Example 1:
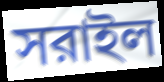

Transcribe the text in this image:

সরাইল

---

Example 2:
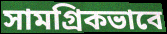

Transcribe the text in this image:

সামগ্রিকভাবে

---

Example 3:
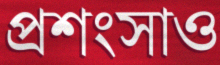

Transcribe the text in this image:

প্রশংসাও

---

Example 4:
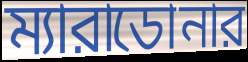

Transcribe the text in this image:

ম্যারাডোনার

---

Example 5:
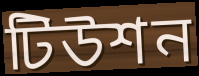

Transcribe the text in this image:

টিউশন